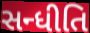
સન્ધીતિ